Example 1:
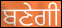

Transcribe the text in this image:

ਬਣੇਗੀ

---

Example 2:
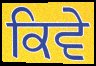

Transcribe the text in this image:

ਕਿਵੇ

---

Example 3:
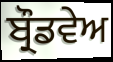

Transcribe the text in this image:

ਬ੍ਰੌਡਵੇਅ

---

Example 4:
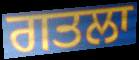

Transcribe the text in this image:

ਗਤਲਾ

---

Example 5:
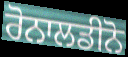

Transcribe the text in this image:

ਰੋਨਾਲਡੀਨੋ